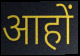
आहों